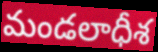
మండలాధీశ